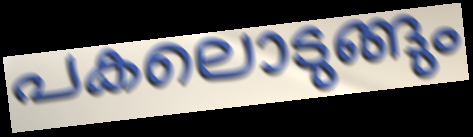
പകലൊടുങ്ങും